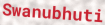
Swanubhuti